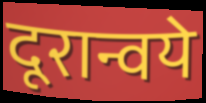
दूरान्वये